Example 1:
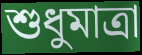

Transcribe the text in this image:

শুধুমাত্রা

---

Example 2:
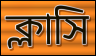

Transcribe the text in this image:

ক্লাসি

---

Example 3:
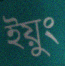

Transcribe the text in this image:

ইয়ুং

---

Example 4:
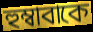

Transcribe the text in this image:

হুম্বাবাকে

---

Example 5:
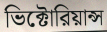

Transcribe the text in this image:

ভিক্টোরিয়ান্স